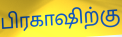
பிரகாஷிற்கு